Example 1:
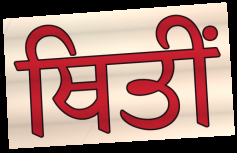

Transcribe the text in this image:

ਥਿਤੀਂ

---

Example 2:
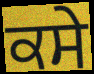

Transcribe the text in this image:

ਕਸੇ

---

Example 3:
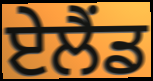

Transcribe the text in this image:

ਏਲੈਂਡ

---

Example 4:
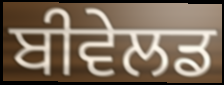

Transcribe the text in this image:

ਬੀਵੇਲਡ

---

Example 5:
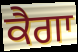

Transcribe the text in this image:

ਕੈਗਾ